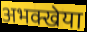
अभक्खेया